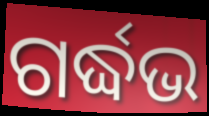
ଗର୍ଦ୍ଧଭ